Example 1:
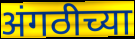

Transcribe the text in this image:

अंगठीच्या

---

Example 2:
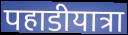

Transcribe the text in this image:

पहाडीयात्रा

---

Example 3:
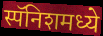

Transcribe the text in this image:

स्पॅनिशमध्ये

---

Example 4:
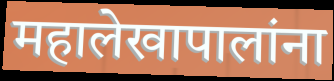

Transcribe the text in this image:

महालेखापालांना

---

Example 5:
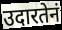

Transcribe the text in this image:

उदारतेनं